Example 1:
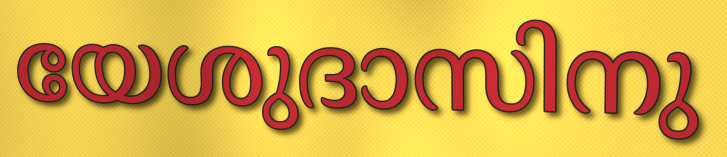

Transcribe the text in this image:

യേശുദാസിനു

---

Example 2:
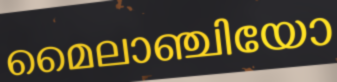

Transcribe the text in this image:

മൈലാഞ്ചിയോ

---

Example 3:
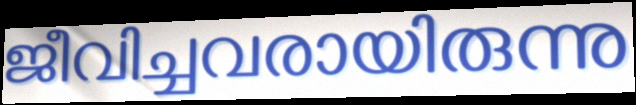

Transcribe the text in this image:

ജീവിച്ചവരായിരുന്നു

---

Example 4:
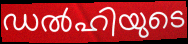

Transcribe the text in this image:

ഡൽഹിയുടെ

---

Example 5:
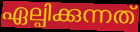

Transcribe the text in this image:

ഏല്പിക്കുന്നത്